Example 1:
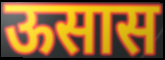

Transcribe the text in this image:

ऊसास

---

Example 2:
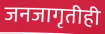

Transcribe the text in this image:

जनजागृतीही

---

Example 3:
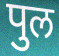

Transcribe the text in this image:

पुल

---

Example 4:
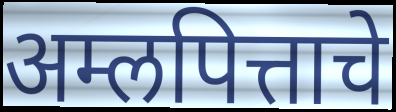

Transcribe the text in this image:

अम्लपित्ताचे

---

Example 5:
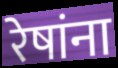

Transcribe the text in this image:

रेषांना